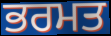
ਭਰਮਤ